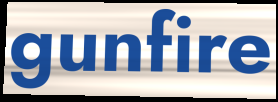
gunfire